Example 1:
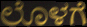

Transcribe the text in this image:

ಲೊಳಗೆ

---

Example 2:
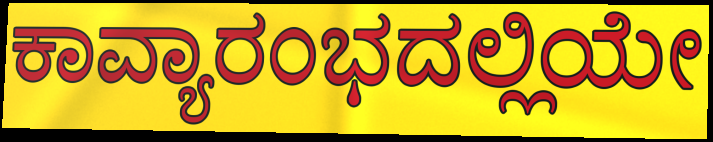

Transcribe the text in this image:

ಕಾವ್ಯಾರಂಭದಲ್ಲಿಯೇ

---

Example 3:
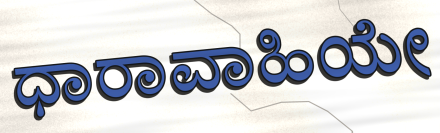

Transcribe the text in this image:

ಧಾರಾವಾಹಿಯೇ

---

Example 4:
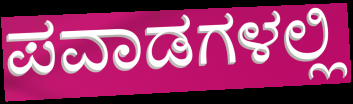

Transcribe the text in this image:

ಪವಾಡಗಳಲ್ಲಿ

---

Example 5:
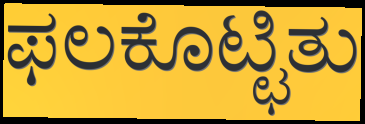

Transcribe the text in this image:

ಫಲಕೊಟ್ಟಿತು